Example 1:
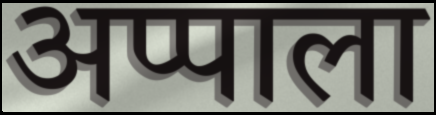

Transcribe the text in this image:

अप्पाला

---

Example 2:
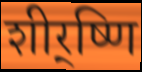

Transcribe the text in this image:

शीर्ष्णि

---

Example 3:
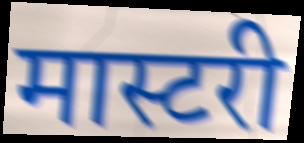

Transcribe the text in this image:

मास्टरी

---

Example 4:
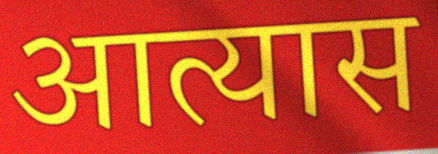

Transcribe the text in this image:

आत्यास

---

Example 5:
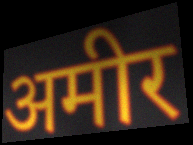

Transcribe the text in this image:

अमीर